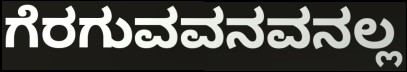
ಗೆರಗುವವನವನಲ್ಲ